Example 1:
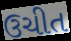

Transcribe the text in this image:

ઉચીત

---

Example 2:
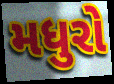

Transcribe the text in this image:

મધુરો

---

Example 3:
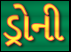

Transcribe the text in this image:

ડ્રોની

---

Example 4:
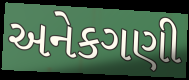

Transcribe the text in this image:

અનેકગણી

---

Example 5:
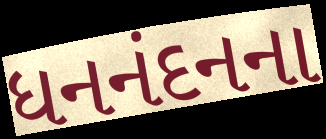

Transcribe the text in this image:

ધનનંદનના